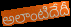
అలాంటిదేదీ